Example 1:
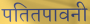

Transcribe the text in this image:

पतितपावनी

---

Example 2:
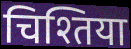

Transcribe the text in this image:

चिश्तिया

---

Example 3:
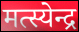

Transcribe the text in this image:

मत्स्येन्द्र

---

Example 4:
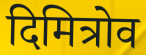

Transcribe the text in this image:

दिमित्रोव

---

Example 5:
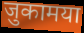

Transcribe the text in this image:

जुकामया